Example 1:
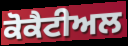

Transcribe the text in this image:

ਕੋਕੈਟੀਅਲ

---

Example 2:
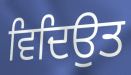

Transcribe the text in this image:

ਵਿਦਿਉਤ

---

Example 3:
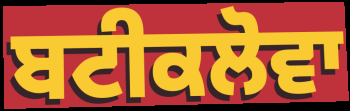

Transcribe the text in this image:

ਬਟੀਕਲੋਵਾ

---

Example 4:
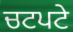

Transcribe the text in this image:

ਚਟਪਟੇ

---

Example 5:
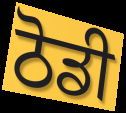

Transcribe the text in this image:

ਠੋਡੀ